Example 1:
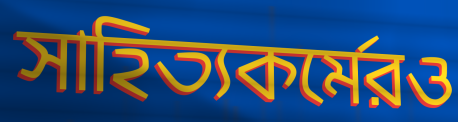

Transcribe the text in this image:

সাহিত্যকর্মেরও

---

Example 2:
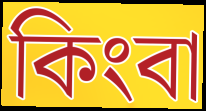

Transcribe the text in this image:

কিংবা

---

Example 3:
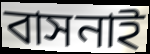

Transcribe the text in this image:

বাসনাই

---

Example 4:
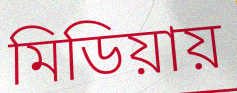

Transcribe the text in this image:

মিডিয়ায়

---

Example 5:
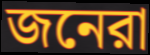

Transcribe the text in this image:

জনেরা